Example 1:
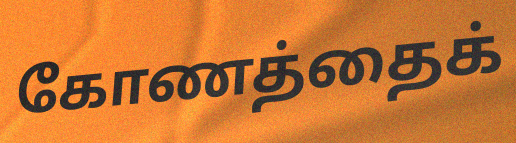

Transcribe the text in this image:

கோணத்தைக்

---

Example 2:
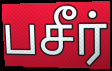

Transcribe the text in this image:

பசீர்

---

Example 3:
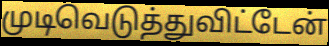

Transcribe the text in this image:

முடிவெடுத்துவிட்டேன்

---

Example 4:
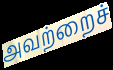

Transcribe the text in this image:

அவற்றைச்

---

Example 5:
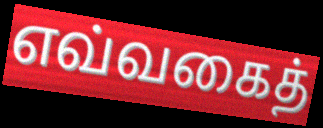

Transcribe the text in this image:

எவ்வகைத்